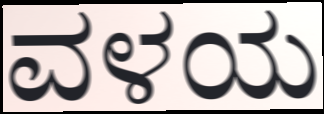
ವಳಯ